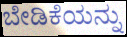
ಬೇಡಿಕೆಯನ್ನು